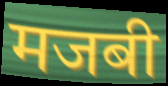
मजबी